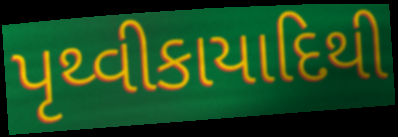
પૃથ્વીકાયાદિથી